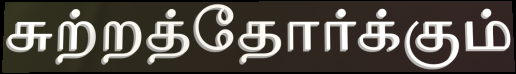
சுற்றத்தோர்க்கும்